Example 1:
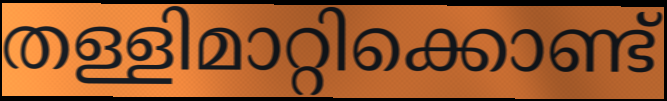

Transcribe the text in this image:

തള്ളിമാറ്റിക്കൊണ്ട്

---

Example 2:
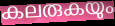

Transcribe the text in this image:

കലരുകയും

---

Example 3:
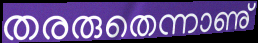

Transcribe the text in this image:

തരരുതെന്നാണു്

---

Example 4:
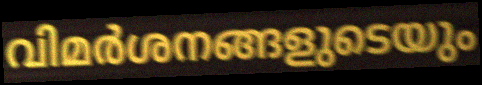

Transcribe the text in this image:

വിമർശനങ്ങളുടെയും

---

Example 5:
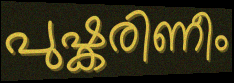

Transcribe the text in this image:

പുഷ്കരിണീം